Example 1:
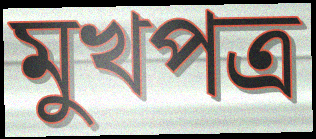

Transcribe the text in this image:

মুখপত্ৰ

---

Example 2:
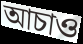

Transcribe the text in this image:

আচাও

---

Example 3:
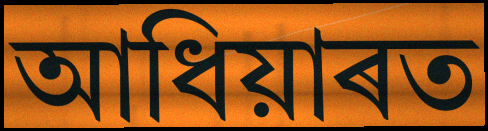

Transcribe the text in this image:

আধিয়াৰত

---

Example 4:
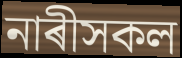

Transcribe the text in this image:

নাৰীসকল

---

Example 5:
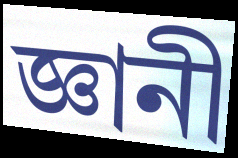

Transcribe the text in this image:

জ্ঞানী